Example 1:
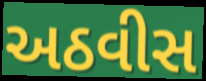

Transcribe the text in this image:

અઠવીસ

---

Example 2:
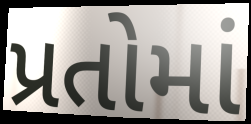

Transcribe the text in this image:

પ્રતોમાં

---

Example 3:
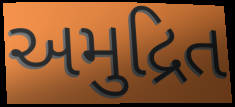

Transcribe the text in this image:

અમુદ્રિત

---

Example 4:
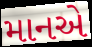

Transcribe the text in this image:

માનએ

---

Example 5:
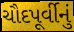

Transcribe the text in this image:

ચૌદપૂર્વીનું